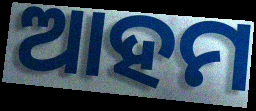
ଆହମ